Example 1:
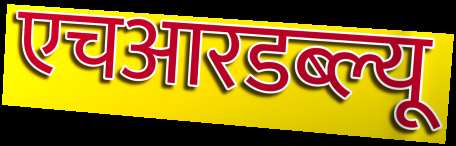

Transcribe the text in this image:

एचआरडब्ल्यू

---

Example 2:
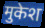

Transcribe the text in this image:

मुकेश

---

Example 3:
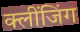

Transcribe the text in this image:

क्लींजिंग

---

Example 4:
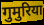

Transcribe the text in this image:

गुमुरिया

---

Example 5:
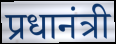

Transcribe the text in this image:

प्रधानंत्री